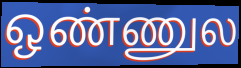
ஒண்ணுல